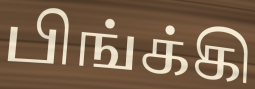
பிங்க்கி